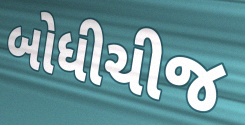
બોધીચીજ